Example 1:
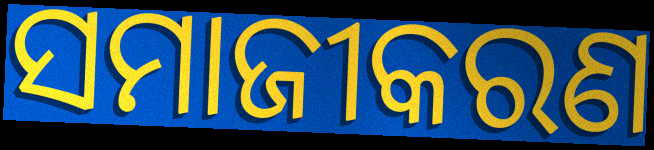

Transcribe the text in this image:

ସମାଜୀକରଣ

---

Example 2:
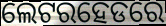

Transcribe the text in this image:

ଲେଟରହେଡରେ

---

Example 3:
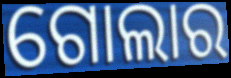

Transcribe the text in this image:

ଗୋଲାର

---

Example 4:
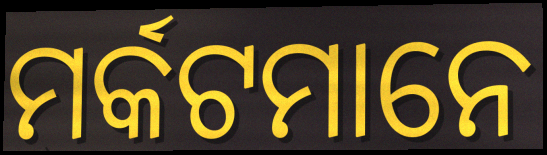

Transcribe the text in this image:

ମର୍କଟମାନେ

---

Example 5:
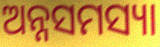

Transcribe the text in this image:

ଅନ୍ନସମସ୍ୟା